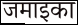
जमाइका